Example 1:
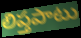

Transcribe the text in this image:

లిప్తపాటు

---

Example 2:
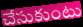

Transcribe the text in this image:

చేసుకుంటు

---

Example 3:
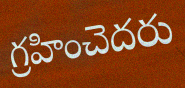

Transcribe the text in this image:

గ్రహించెదరు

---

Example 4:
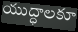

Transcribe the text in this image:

యుద్ధాలకూ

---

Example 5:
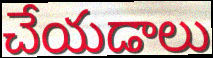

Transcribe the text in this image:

చేయడాలు